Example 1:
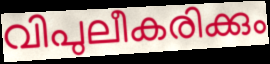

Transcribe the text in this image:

വിപുലീകരിക്കും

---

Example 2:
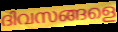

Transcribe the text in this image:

ദിവസങ്ങളെ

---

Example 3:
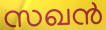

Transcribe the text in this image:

സഖൻ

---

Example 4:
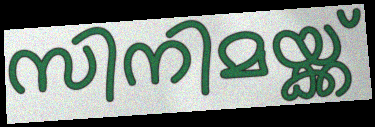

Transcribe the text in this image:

സിനിമയ്ക്ക്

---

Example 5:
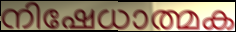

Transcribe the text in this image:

നിഷേധാത്മക